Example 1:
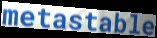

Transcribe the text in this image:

metastable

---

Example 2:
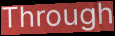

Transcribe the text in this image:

Through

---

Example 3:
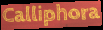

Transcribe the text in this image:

Calliphora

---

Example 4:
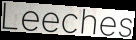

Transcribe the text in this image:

Leeches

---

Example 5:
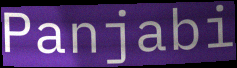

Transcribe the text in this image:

Panjabi